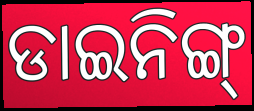
ଡାଇନିଙ୍ଗ୍